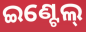
ଇଣ୍ଟେଲ୍